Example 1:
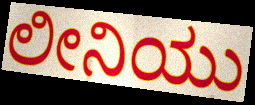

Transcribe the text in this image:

ಲೀನಿಯು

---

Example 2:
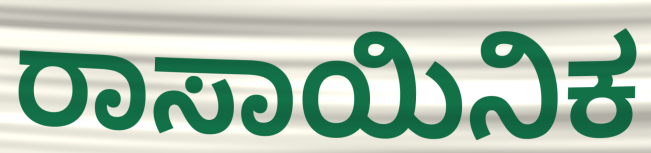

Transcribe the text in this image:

ರಾಸಾಯಿನಿಕ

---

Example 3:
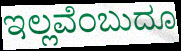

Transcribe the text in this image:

ಇಲ್ಲವೆಂಬುದೂ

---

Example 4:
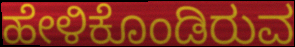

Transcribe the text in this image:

ಹೇಳಿಕೊಂಡಿರುವ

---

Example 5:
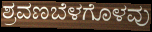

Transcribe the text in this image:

ಶ್ರವಣಬೆಳಗೊಳವು